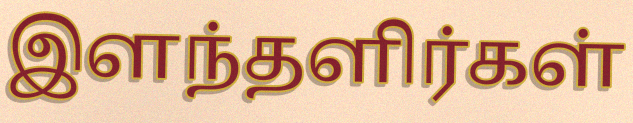
இளந்தளிர்கள்